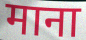
माना